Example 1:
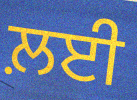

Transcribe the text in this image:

ਲ਼ਈ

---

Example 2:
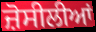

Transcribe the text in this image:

ਜ਼ੋਸੀਲੀਆਂ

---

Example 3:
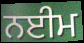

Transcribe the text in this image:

ਨਈਮ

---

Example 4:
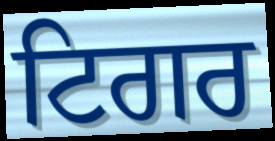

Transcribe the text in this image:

ਟਿਗਰ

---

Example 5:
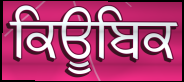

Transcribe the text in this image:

ਕਿਊਬਿਕ